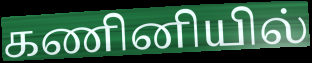
கணினியில்